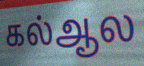
கல்ஆல